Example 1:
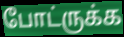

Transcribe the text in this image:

போட்ருக்க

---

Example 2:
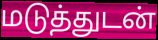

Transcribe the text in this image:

மடுத்துடன்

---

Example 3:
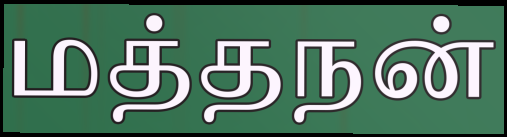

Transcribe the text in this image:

மத்தநன்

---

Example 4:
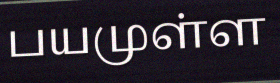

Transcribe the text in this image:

பயமுள்ள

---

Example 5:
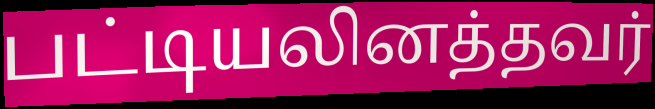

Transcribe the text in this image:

பட்டியலினத்தவர்